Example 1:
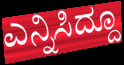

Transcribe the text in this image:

ಎನ್ನಿಸಿದ್ದೂ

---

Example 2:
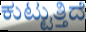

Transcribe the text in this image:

ಕುಟ್ಟುತ್ತಿದೆ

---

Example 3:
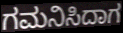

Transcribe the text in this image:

ಗಮನಿಸಿದಾಗ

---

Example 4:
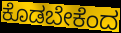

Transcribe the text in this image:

ಕೊಡಬೇಕೆಂದ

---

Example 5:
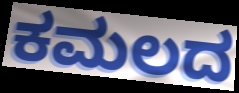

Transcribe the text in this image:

ಕಮಲದ